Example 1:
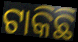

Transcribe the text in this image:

ଟାକିଛି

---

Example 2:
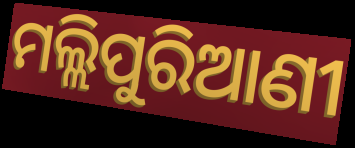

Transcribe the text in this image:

ମଲ୍ଲିପୁରିଆଣୀ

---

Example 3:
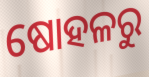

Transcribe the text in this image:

ଷୋହଳରୁ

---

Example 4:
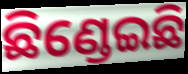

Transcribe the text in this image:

ଛିଣ୍ଡେଇଛି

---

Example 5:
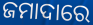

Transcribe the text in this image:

ଜମାଦାରେ